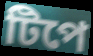
টিপে